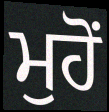
ਮੁਹੋਂ